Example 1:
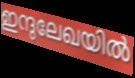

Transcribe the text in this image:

ഇന്ദുലേഖയിൽ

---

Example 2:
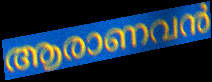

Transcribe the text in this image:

ആരാണവൻ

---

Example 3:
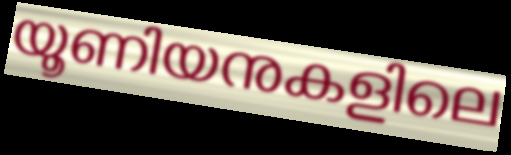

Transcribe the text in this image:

യൂണിയനുകളിലെ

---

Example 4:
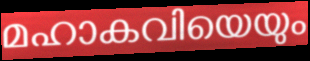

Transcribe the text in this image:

മഹാകവിയെയും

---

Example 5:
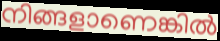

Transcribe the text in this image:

നിങ്ങളാണെങ്കിൽ